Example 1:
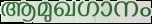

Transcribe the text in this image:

ആമുഖഗാനം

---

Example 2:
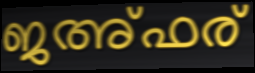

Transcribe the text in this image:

ജഅ്ഫര്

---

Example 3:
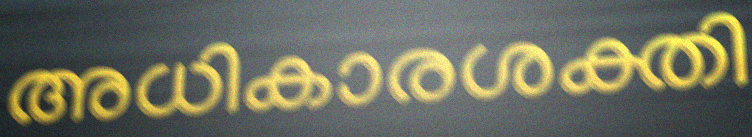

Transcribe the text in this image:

അധികാരശക്തി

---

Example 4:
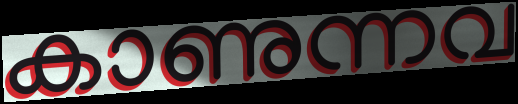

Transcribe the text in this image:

കാണുന്നവ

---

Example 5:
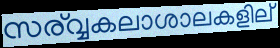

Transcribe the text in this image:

സര്വ്വകലാശാലകളില്